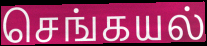
செங்கயல்